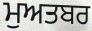
ਮੁਅਤਬਰ